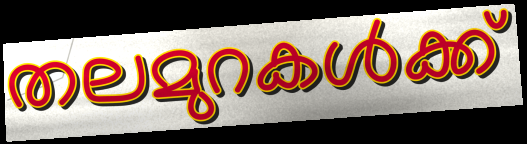
തലമുറകൾക്ക്